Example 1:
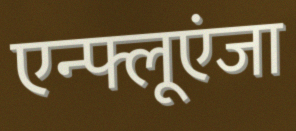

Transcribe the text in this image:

एन्फ्लूएंजा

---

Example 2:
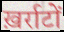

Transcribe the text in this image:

ख़र्राटों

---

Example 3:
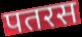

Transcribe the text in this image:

पतरस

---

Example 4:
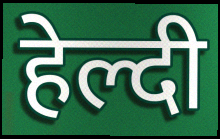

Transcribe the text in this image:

हेल्‍दी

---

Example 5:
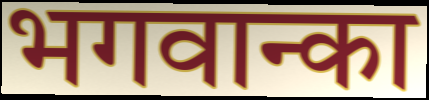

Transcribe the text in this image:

भगवान्का